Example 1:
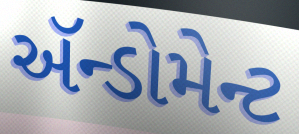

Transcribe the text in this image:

ઍન્ડોમેન્ટ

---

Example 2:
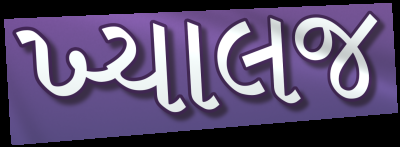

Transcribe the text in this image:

ખ્યાલજ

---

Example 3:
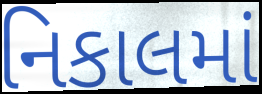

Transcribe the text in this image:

નિકાલમાં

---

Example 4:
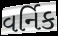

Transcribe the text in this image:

વર્નિક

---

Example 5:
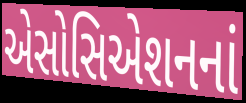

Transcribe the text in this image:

એસોસિએશનનાં